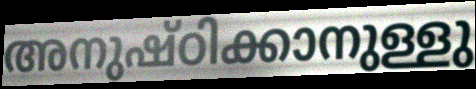
അനുഷ്ഠിക്കാനുള്ളു